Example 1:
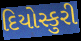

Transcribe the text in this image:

દિયોસ્કુરી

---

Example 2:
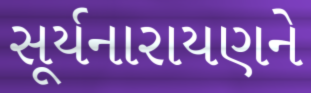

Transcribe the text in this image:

સૂર્યનારાયણને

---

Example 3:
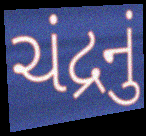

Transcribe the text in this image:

ચંદ્રનું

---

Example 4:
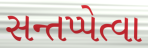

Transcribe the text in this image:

સન્તપ્પેત્વા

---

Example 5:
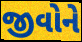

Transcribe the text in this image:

જીવોને